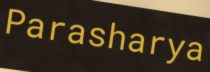
Parasharya